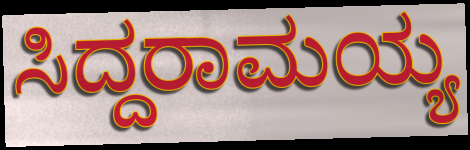
ಸಿದ್ದರಾಮಯ್ಯ